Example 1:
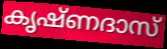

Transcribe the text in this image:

കൃഷ്ണദാസ്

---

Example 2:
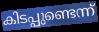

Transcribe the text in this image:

കിടപ്പുണ്ടെന്ന്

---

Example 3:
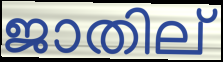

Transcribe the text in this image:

ജാതില്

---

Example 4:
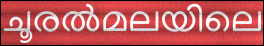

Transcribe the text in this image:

ചൂരൽമലയിലെ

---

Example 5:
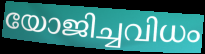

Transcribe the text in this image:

യോജിച്ചവിധം